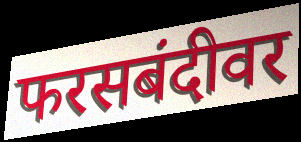
फरसबंदीवर